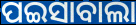
ପଇସାବାଲା